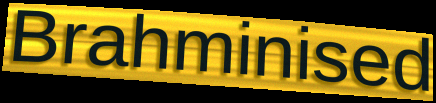
Brahminised